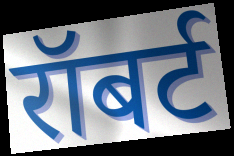
रॉबर्ट